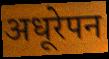
अधूरेपन